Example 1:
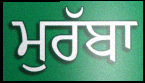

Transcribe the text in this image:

ਮੁਰੱਬਾ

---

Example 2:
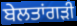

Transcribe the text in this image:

ਬੇਲਤਾਂਗੜੀ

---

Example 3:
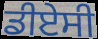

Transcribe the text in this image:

ਡੀਏਸੀ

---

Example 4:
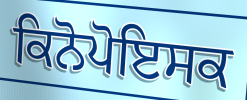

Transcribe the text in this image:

ਕਿਨੋਪੋਇਸਕ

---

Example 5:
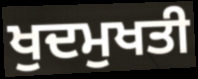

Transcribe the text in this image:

ਖੁਦਮੁਖਤੀ